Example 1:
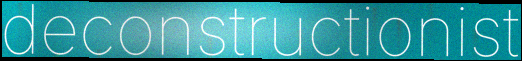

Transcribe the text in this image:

deconstructionist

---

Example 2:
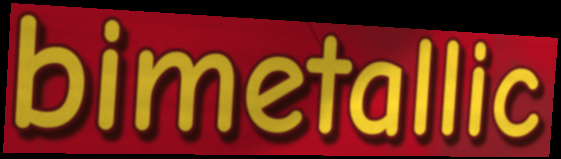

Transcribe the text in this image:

bimetallic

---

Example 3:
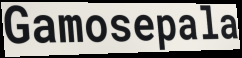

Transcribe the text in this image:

Gamosepala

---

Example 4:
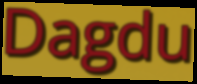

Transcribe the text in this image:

Dagdu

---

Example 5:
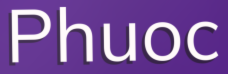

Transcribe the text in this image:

Phuoc